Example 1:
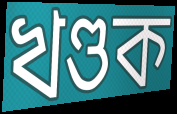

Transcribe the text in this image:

খণ্ডক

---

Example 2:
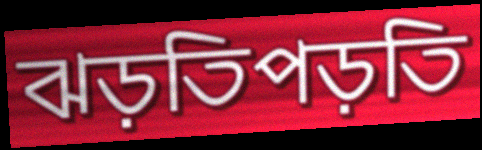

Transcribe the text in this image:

ঝড়তিপড়তি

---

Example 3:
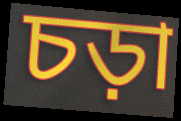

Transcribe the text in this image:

চড়া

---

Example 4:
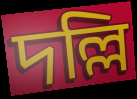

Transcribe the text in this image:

দল্লি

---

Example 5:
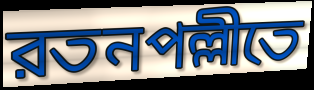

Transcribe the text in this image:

রতনপল্লীতে